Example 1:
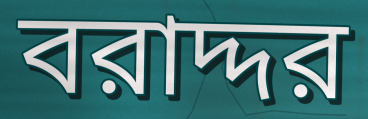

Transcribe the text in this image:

বরাদ্দর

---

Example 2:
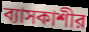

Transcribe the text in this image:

ব্যাসকাশীর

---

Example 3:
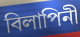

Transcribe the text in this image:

বিলাপিনী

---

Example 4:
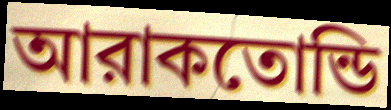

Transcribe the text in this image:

আরাকতোন্ডি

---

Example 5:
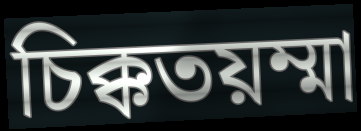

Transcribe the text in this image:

চিক্কতয়ম্মা